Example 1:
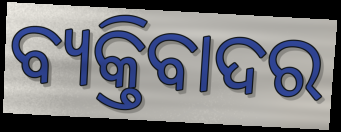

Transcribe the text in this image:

ବ୍ୟକ୍ତିବାଦର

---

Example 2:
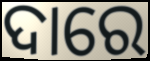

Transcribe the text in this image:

ଦାରେ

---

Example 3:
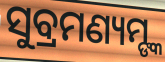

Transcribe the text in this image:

ସୁବ୍ରମଣ୍ୟମ୍ଙ୍କ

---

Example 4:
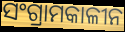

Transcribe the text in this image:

ସଂଗ୍ରାମକାଳୀନ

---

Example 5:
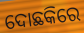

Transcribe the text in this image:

ଦୋଛକିରେ